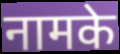
नामके